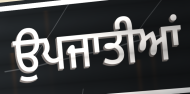
ਉਪਜਾਤੀਆਂ